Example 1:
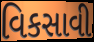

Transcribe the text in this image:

વિકસાવી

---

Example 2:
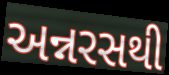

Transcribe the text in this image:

અન્નરસથી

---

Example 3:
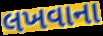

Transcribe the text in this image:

લખવાના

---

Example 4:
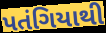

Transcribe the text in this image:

પતંગિયાથી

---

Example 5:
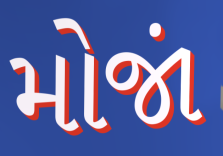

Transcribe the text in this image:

મોજાં